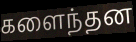
களைந்தன